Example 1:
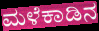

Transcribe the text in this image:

ಮಳೆಕಾಡಿನ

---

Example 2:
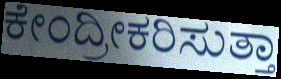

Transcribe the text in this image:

ಕೇಂದ್ರೀಕರಿಸುತ್ತಾ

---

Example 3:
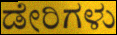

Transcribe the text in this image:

ಡೇರಿಗಳು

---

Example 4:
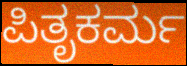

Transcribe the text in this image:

ಪಿತೃಕರ್ಮ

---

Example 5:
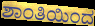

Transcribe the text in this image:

ಶಾಂತಿಯಿಂದ